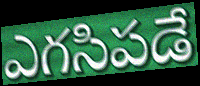
ఎగసిపడే